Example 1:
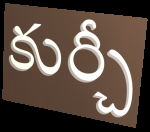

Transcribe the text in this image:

కుర్చీ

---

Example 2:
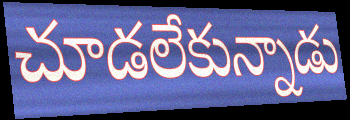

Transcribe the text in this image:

చూడలేకున్నాడు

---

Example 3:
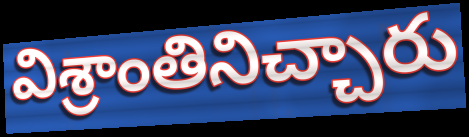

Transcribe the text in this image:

విశ్రాంతినిచ్చారు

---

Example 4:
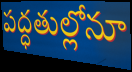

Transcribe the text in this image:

పద్ధతుల్లోనూ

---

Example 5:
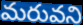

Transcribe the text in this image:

మరువని